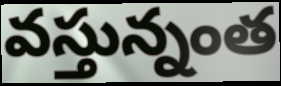
వస్తున్నంత